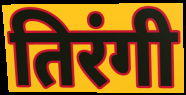
तिरंगी